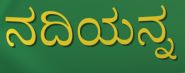
ನದಿಯನ್ನ